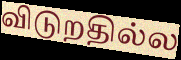
விடுறதில்ல